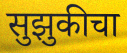
सुझुकीचा